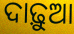
ଦାଢ଼ୁଆ